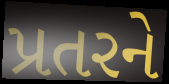
પ્રતરને